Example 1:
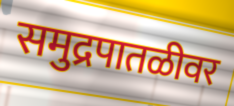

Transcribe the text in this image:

समुद्रपातळीवर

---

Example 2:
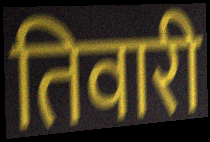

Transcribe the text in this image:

तिवारी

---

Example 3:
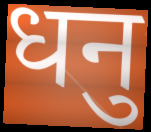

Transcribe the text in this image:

धनु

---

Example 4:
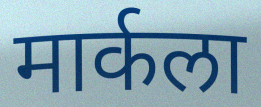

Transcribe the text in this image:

मार्कला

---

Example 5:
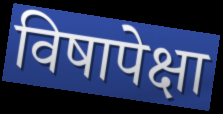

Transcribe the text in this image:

विषापेक्षा